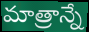
మాత్రాన్నే